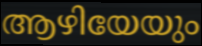
ആഴിയേയും